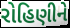
રોહિણીને